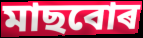
মাছবোৰ